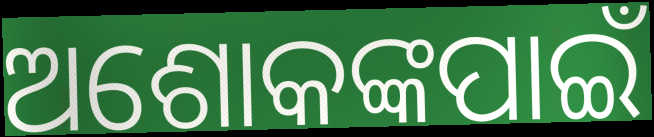
ଅଶୋକଙ୍କପାଇଁ